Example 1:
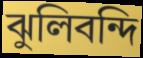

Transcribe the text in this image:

ঝুলিবন্দি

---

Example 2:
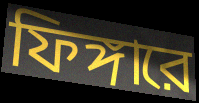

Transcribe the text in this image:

ফিঙ্গারে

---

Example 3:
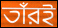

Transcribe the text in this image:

তাঁরই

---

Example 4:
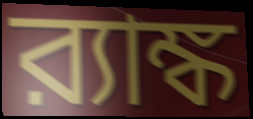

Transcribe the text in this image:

র‍্যাঙ্ক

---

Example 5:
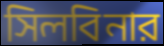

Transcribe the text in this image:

সিলবিনার